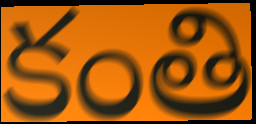
కంతి